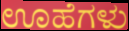
ಊಹೆಗಳು